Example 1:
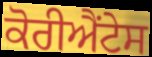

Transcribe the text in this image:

ਕੋਰੀਐਂਟੇਸ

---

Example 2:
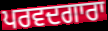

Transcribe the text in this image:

ਪਰਵਦਗਾਰਾ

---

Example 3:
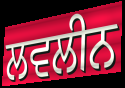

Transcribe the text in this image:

ਲਵਲੀਨ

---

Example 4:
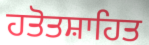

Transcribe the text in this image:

ਹਤੋਤਸ਼ਾਹਿਤ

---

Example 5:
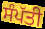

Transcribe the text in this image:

ਸੰਪੱਤੀ